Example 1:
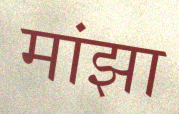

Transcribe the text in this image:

मांझा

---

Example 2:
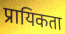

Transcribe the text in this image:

प्रायिकता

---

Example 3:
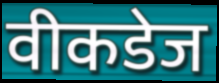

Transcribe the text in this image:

वीकडेज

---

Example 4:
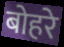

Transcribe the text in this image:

बोहरे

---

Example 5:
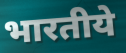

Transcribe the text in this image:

भारतीये